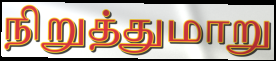
நிறுத்துமாறு